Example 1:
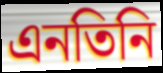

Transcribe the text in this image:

এনতিনি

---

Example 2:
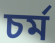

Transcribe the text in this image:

চর্ম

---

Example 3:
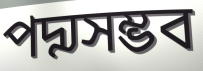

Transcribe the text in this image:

পদ্মসম্ভব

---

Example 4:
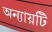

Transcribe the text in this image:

অন্যায়টি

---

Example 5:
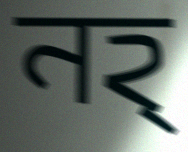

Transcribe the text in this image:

নহ্